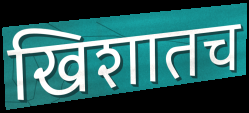
खिशातच